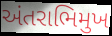
અંતરાભિમુખ